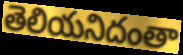
తెలియనిదంతా